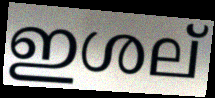
ഇശല്